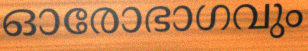
ഓരോഭാഗവും